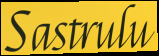
Sastrulu